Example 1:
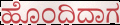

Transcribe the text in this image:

ಹೊಂದಿದಾಗ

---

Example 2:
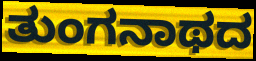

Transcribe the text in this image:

ತುಂಗನಾಥದ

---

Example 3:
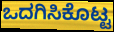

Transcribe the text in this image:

ಒದಗಿಸಿಕೊಟ್ಟ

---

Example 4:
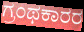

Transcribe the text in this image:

ಗ್ರಂಥಕಾರರ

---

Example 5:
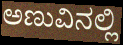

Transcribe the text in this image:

ಅಣುವಿನಲ್ಲಿ